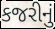
કજરીનું